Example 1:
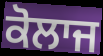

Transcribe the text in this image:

ਕੋਲਾਜ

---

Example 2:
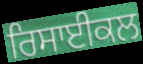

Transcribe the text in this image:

ਰਿਸਾਈਕਲ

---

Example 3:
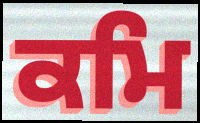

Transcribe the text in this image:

ਕਮਿ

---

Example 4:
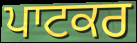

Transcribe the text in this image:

ਪਾਟਕਰ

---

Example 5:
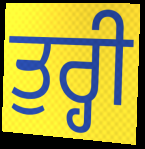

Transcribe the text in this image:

ਤੁਰ੍ਹੀ